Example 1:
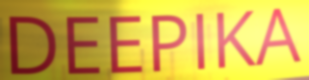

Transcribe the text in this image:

DEEPIKA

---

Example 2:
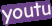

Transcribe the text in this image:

youtu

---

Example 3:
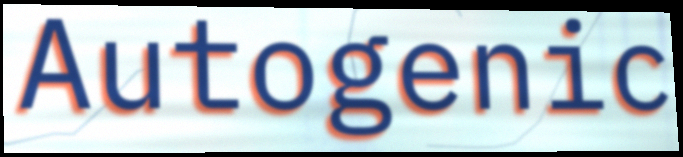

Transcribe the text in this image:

Autogenic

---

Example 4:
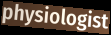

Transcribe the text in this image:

physiologist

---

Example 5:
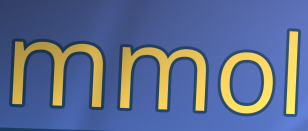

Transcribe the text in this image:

mmol